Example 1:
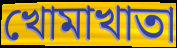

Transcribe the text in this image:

খোমাখাতা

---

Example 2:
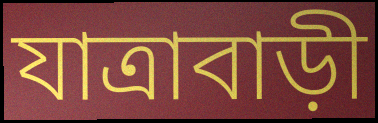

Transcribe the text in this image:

যাত্রাবাড়ী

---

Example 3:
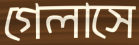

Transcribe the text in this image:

গেলাসে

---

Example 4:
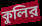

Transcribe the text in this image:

কুলির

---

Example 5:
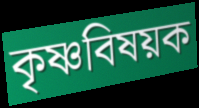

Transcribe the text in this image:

কৃষ্ণবিষয়ক